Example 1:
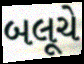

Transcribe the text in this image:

બલૂચે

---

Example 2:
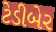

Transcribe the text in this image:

ટેડીબેર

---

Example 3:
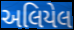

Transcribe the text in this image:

અલિયેલ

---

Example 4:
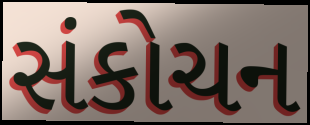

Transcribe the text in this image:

સંકોચન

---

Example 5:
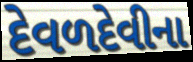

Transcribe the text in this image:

દેવળદેવીના